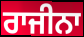
ਰਾਜੀਨਾ